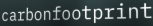
carbonfootprint